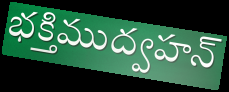
భక్తిముద్వహన్